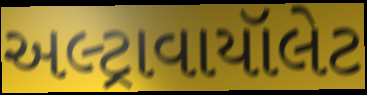
અલ્ટ્રાવાયૉલેટ